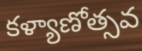
కళ్యాణోత్సవ